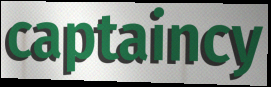
captaincy